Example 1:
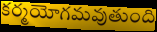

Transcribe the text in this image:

కర్మయోగమవుతుంది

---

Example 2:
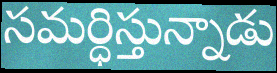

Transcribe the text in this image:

సమర్ధిస్తున్నాడు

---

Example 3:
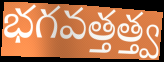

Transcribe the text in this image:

భగవత్తత్త్వ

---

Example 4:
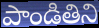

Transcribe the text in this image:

పాండితిని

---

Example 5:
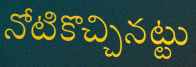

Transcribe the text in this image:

నోటికొచ్చినట్టు